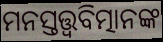
ମନସ୍ତତ୍ତ୍ବବିତ୍ମାନଙ୍କ